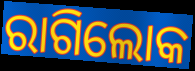
ରାଗିଲୋକ